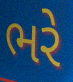
ભરે